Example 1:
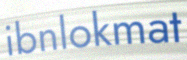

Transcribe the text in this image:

ibnlokmat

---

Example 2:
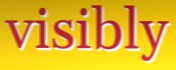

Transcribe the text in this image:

visibly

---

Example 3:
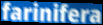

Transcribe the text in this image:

farinifera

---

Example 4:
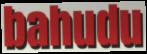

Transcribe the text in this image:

bahudu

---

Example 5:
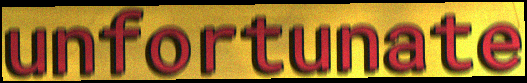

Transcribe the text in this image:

unfortunate